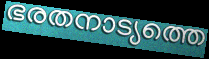
ഭരതനാട്യത്തെ